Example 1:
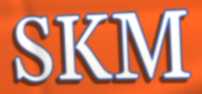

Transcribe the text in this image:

SKM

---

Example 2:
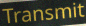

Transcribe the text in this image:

Transmit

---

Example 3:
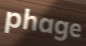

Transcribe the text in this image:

phage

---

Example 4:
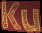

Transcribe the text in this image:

Ku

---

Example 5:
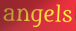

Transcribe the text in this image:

angels